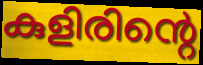
കുളിരിന്റെ